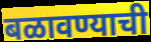
बळावण्याची